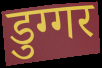
डुग्गर